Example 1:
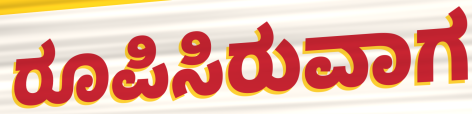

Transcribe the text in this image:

ರೂಪಿಸಿರುವಾಗ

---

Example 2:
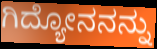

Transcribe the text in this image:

ಗಿದ್ಯೋನನನ್ನು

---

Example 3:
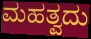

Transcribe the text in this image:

ಮಹತ್ವದು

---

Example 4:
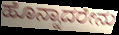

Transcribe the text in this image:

ಹೊನ್ನಾದರೇನು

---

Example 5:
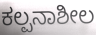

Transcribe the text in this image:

ಕಲ್ಪನಾಶೀಲ